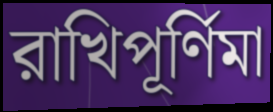
রাখিপূর্ণিমা